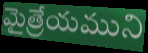
మైత్రేయముని